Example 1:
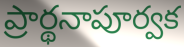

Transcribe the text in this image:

ప్రార్థనాపూర్వక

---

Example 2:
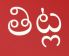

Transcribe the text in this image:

తిట్ల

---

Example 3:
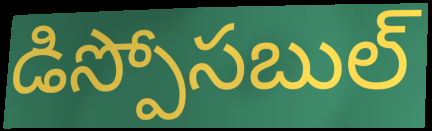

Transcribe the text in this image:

డిస్పోసబుల్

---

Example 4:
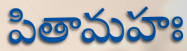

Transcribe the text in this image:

పితామహః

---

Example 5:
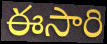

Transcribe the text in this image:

ఈసారి